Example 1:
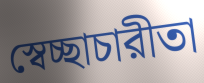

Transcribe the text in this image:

স্বেচ্ছাচারীতা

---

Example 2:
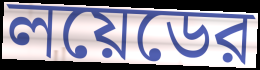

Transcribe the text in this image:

লয়েডের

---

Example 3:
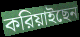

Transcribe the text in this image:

করিয়াইছেন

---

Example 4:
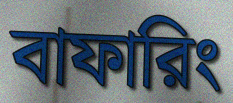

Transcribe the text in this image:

বাফারিং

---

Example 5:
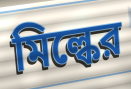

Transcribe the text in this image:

মিল্কের